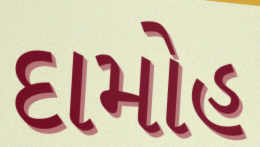
દામોહ